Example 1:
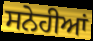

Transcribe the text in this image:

ਸਨੇਹੀਆਂ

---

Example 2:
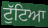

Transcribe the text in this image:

ਟੁੱਟਿਆ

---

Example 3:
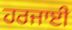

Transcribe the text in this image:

ਹਰਜਾਈ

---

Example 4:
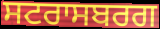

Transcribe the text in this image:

ਸਟਰਾਸਬਰਗ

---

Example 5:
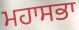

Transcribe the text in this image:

ਮਹਾਸਭਾ